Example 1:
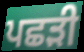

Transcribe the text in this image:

ਪਛੜੀ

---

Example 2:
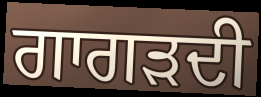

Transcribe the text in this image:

ਗਾਗੜਦੀ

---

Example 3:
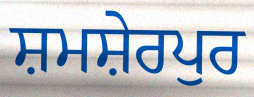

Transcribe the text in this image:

ਸ਼ਮਸ਼ੇਰਪੁਰ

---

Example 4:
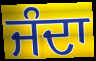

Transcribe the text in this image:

ਜੰਦਾ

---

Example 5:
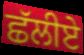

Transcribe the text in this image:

ਛੱਲੀਏ